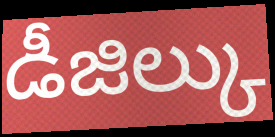
డీజిల్కు